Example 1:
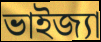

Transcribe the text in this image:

ভাইজ্যা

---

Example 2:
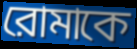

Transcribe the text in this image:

রোমাকে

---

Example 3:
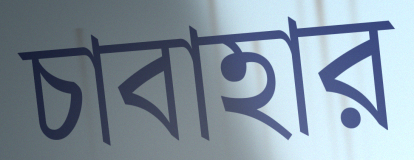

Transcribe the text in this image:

চাবাহার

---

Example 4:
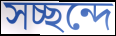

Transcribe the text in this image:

সচ্ছন্দে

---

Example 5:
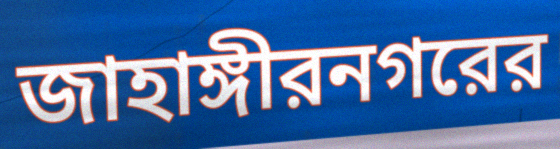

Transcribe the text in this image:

জাহাঙ্গীরনগরের